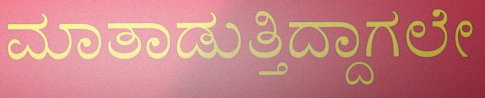
ಮಾತಾಡುತ್ತಿದ್ದಾಗಲೇ